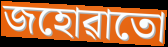
জহোৱাতো